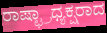
ರಾಷ್ಟ್ರಾಧ್ಯಕ್ಷರಾದ